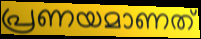
പ്രണയമാണത്